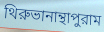
থিরুভানান্থাপুরাম